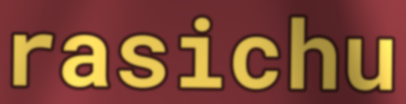
rasichu